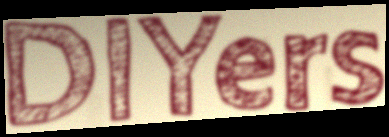
DIYers